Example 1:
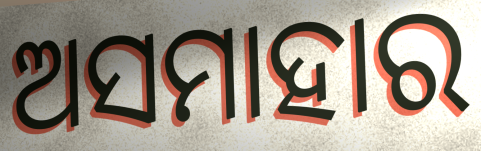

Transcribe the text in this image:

ଅସମାହାର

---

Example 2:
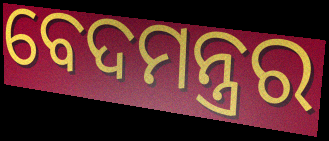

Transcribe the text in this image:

ବେଦମନ୍ତ୍ରର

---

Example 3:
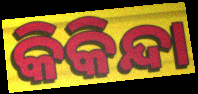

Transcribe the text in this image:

କିକିନ୍ଦା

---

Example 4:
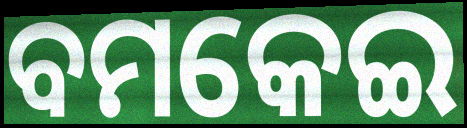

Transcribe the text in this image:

ବମକେଇ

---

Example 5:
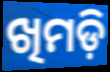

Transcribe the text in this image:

ଖିମଡ଼ି